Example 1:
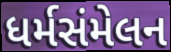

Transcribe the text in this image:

ધર્મસંમેલન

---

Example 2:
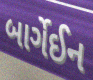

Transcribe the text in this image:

બાર્ગેઈન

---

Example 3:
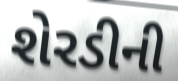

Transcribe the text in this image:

શેરડીની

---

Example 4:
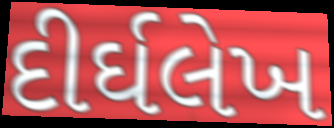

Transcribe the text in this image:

દીર્ઘલેખ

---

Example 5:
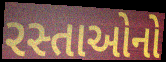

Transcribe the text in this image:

રસ્તાઓનો